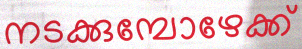
നടക്കുമ്പോഴേക്ക്